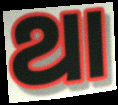
ଥା